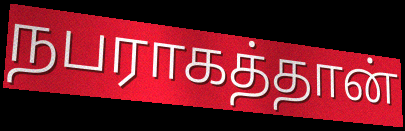
நபராகத்தான்